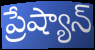
ప్రేష్యాన్